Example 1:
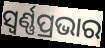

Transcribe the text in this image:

ସ୍ୱର୍ଣ୍ଣପ୍ରଭାର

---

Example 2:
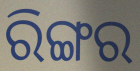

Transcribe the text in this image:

ରିଙ୍ଗର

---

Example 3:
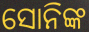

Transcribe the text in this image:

ସୋନିଙ୍କ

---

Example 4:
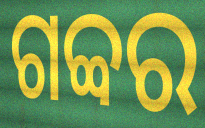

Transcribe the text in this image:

ଗବ୍ବର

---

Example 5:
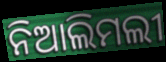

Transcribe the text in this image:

ନିଆଲିମଲୀ